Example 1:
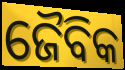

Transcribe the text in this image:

ଜୈବିକ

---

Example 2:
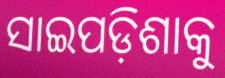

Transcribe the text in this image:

ସାଇପଡ଼ିଶାକୁ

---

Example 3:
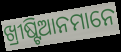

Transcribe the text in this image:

ଖ୍ରୀଷ୍ଟିଆନମାନେ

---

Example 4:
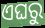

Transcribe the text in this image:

ଏଘରୁ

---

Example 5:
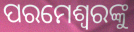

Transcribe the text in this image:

ପରମେଶ୍ୱରଙ୍କୁ